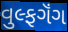
વુલ્ફગૅંગ